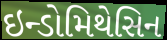
ઇન્ડોમિથેસિન